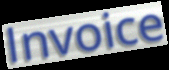
Invoice